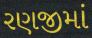
રણજીમાં